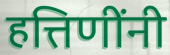
हत्तिणींनी